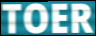
TOER